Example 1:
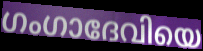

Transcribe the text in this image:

ഗംഗാദേവിയെ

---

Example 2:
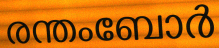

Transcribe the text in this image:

രന്തംബോർ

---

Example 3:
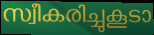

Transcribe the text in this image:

സ്വീകരിച്ചുകൂടാ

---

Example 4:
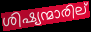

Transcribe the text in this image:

ശിഷ്യന്മാരില്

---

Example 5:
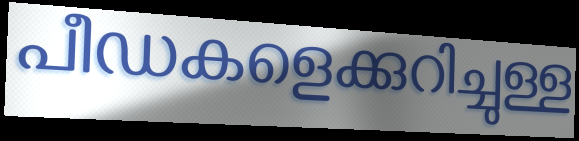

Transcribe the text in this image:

പീഡകളെക്കുറിച്ചുള്ള